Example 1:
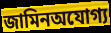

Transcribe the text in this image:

জামিনঅযোগ্য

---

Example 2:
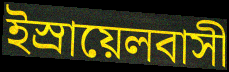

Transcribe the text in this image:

ইস্রায়েলবাসী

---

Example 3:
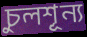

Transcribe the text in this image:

চুলশূন্য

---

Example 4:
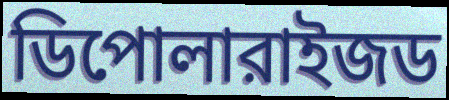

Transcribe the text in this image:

ডিপোলারাইজড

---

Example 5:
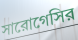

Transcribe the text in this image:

সারোগেসির